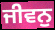
ਜੀਵਨੁ